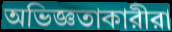
অভিজ্ঞতাকারীরা